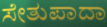
ಸೇತುಪಾದಾ